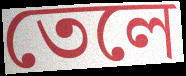
তেলে